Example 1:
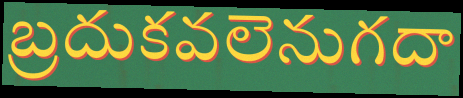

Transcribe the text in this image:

బ్రదుకవలెనుగదా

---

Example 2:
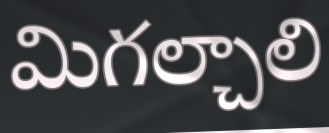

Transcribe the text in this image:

మిగల్చాలి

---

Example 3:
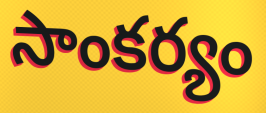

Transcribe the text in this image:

సాంకర్యం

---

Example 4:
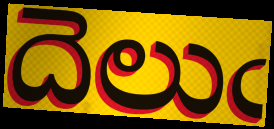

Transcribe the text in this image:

దెలుఁ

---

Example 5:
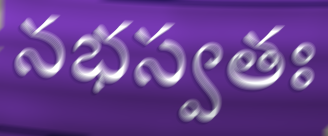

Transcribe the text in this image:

నభస్వతః